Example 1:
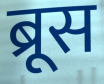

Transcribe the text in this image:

ब्रूस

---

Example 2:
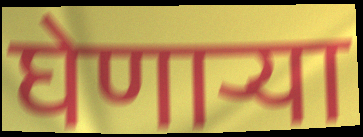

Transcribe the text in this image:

घेणाऱ्या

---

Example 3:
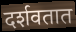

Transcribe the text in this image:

दर्शवतात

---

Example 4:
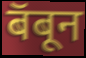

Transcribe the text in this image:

बॅबून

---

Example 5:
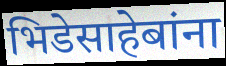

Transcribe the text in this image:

भिडेसाहेबांना